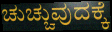
ಚುಚ್ಚುವುದಕ್ಕೆ